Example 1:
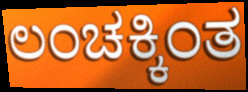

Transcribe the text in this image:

ಲಂಚಕ್ಕಿಂತ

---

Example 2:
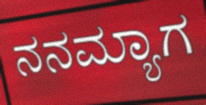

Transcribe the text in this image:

ನನಮ್ಯಾಗ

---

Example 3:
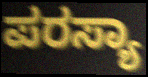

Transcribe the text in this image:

ಪರಸ್ಯಾ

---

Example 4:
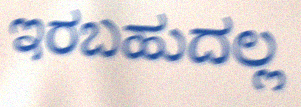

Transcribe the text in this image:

ಇರಬಹುದಲ್ಲ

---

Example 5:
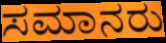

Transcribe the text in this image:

ಸಮಾನರು